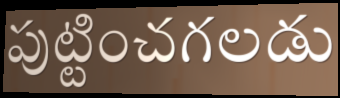
పుట్టించగలడు